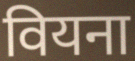
वियना